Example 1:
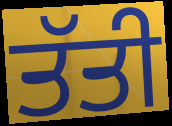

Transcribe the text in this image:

ਤੱਤੀ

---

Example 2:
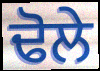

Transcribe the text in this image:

ਢੋਲੇ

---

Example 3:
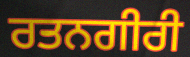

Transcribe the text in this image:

ਰਤਨਗੀਰੀ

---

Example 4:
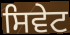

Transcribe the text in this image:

ਸਿਵੇਟ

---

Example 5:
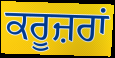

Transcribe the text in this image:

ਕਰੂਜ਼ਰਾਂ